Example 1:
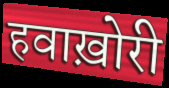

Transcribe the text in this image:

हवाख़ोरी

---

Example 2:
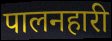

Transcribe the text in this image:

पालनहारी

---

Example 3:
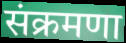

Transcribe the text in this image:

संक्रमणा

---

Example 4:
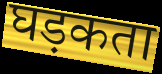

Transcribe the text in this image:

घड़कता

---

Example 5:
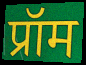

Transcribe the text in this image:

प्रॉम